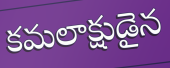
కమలాక్షుడైన